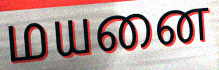
மயனை